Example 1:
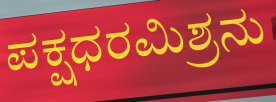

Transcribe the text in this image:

ಪಕ್ಷಧರಮಿಶ್ರನು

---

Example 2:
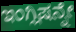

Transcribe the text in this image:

ಇಂಗ್ಲಿಷನ್ನೇ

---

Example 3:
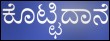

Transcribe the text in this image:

ಕೊಟ್ಟಿದಾನೆ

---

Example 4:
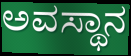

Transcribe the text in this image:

ಅವಸ್ಥಾನ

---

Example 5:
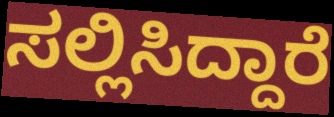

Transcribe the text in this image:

ಸಲ್ಲಿಸಿದ್ದಾರೆ